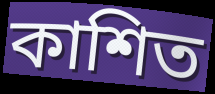
কাশিত